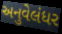
અનુવેલંધર